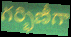
గర్భిణీగా